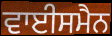
ਵਾਈਸਮੈਨ